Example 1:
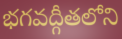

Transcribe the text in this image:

భగవద్గీతలోని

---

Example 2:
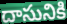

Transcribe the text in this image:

దాసునికి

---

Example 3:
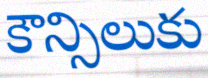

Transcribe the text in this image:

కౌన్సిలుకు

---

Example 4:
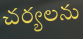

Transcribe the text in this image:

చర్యలను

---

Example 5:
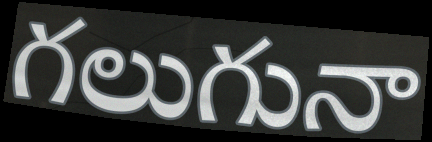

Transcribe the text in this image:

గలుగునా